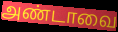
அண்டாவை